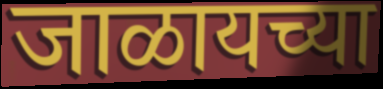
जाळायच्या